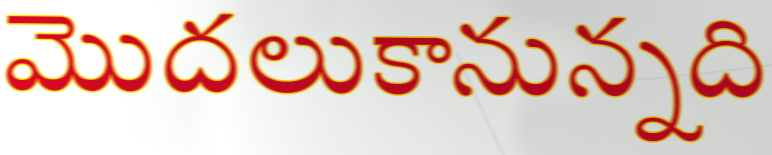
మొదలుకానున్నది